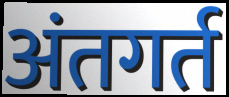
अंतगर्त